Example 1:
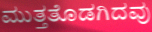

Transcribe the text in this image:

ಮುತ್ತತೊಡಗಿದವು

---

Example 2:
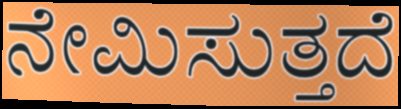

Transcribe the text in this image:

ನೇಮಿಸುತ್ತದೆ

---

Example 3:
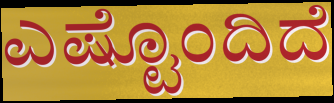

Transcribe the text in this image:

ಎಷ್ಟೊಂದಿದೆ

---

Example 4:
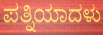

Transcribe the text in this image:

ಪತ್ನಿಯಾದಳು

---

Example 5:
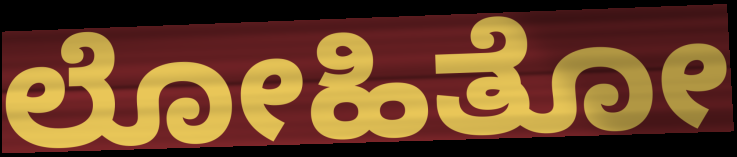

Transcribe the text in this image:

ಲೋಹಿತೋ